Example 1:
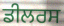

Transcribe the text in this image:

ਡੀਲਰਸ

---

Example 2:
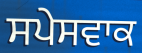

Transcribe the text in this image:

ਸਪੇਸਵਾਕ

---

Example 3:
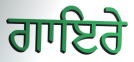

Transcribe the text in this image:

ਗਾਇਰੇ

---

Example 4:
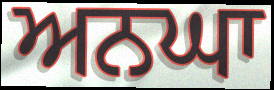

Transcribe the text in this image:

ਅਨਘਾ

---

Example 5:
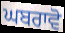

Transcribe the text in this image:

ਘਬਰਾਵੋ